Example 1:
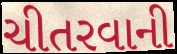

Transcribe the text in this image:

ચીતરવાની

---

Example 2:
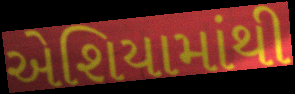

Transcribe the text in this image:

એશિયામાંથી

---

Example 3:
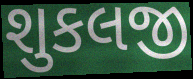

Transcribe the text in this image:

શુકલજી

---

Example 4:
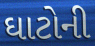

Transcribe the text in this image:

ઘાટોની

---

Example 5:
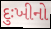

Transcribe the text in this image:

દુઃખીનો